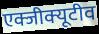
एक्जीक्यूटीव